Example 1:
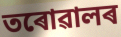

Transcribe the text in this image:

তৰোৱালৰ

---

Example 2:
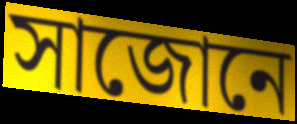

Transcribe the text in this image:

সাজোনে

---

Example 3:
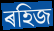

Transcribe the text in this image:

ৰহিজ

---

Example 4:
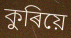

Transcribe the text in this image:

কুৰিয়ে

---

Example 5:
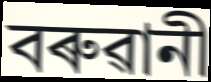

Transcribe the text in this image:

বৰুৱানী